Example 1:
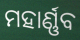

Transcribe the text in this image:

ମହାର୍ଣ୍ଣବ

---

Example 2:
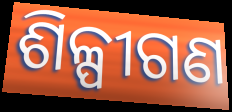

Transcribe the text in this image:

ଶିଳ୍ପୀଗଣ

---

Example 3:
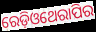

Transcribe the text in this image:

ରେଡ଼ିଓଥେରାପିର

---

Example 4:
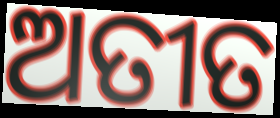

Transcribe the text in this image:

ଅତୀତ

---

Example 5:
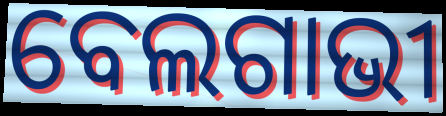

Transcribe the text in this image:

ବେଲଗାଭୀ